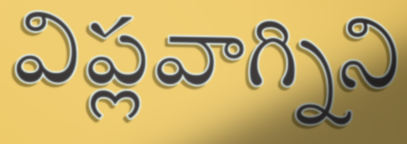
విప్లవాగ్నిని